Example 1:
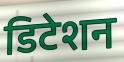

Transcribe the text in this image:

डिटेशन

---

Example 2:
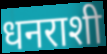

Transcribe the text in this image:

धनराशी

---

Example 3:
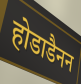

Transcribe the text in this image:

होडाडैनन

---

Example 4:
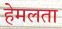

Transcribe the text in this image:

हेमलता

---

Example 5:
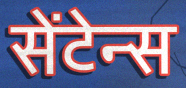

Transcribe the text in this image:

सेंटेन्स